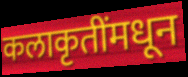
कलाकृतींमधून